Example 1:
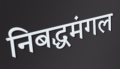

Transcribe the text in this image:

निबद्धमंगल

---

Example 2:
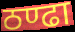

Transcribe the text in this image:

ठण्ढा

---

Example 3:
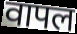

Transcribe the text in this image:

वापल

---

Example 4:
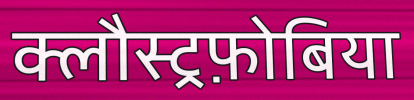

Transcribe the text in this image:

क्लौस्ट्रफ़ोबिया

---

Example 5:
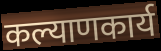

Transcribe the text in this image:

कल्याणकार्य